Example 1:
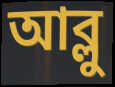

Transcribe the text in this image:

আব্লু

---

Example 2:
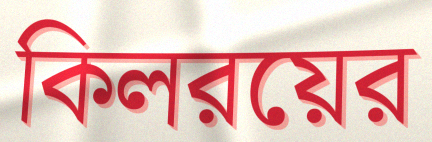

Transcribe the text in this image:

কিলরয়ের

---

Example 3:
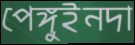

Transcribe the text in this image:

পেঙ্গুইনদা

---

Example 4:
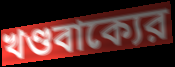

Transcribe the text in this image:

খণ্ডবাক্যের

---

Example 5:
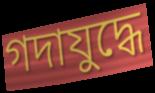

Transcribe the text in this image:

গদাযুদ্ধে